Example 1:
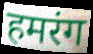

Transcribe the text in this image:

हमरंग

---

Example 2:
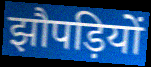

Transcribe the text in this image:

झौपड़ियों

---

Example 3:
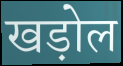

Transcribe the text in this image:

खड़ोल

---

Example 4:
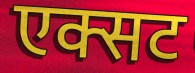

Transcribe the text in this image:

एक्सट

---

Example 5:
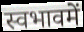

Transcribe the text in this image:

स्वभावमें